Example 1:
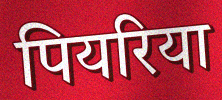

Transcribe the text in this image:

पियरिया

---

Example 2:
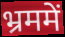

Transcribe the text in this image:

भ्रममें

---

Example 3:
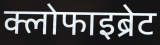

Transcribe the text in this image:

क्लोफाइब्रेट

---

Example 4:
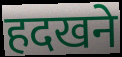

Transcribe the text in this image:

हदखने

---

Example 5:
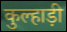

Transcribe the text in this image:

कुल्हाड़ी